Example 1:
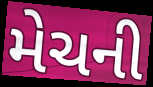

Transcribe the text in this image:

મેચની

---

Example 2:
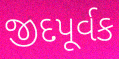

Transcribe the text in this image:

જીદપૂર્વક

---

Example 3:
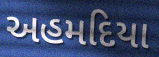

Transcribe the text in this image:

અહમદિયા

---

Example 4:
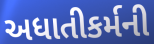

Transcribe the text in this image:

અધાતીકર્મની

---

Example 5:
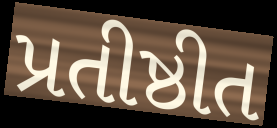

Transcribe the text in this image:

પ્રતીષ્ઠીત